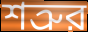
শত্রুর